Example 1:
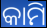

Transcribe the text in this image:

କାମି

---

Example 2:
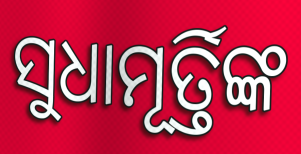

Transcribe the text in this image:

ସୁଧାମୂର୍ତ୍ତିଙ୍କ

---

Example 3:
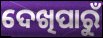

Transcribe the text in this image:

ଦେଖିପାରୁଁ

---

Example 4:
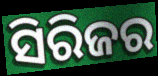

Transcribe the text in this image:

ସିରିଜର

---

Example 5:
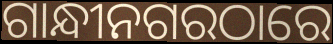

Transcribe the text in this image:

ଗାନ୍ଧୀନଗରଠାରେ